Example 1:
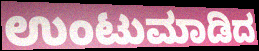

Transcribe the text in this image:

ಉಂಟುಮಾಡಿದ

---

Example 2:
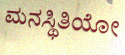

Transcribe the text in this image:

ಮನಸ್ಥಿತಿಯೋ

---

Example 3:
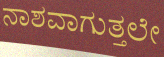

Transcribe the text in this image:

ನಾಶವಾಗುತ್ತಲೇ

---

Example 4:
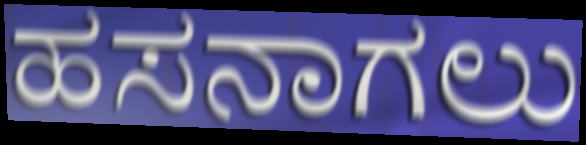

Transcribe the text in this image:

ಹಸನಾಗಲು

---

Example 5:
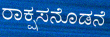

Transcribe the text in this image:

ರಾಕ್ಷಸನೊಡನೆ